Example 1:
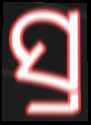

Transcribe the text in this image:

ସ୍ର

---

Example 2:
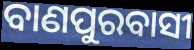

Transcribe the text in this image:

ବାଣପୁରବାସୀ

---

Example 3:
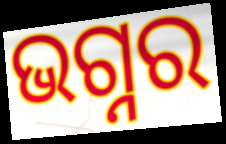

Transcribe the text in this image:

ଭଗ୍ନର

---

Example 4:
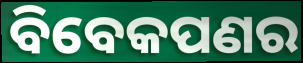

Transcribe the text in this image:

ବିବେକପଣର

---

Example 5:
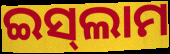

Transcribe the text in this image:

ଇସ୍‌ଲାମ